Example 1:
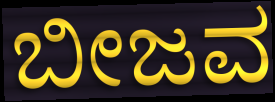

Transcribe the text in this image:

ಬೀಜವ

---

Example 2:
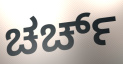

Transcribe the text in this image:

ಚರ್ಚ್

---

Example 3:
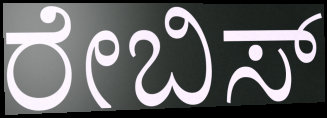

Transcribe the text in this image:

ರೇಬಿಸ್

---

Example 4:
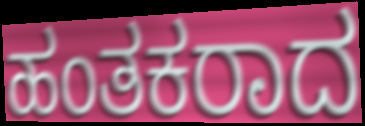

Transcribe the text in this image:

ಹಂತಕರಾದ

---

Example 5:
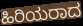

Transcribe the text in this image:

ಹಿರಿಯರಾದ